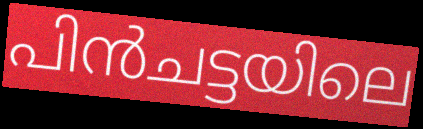
പിൻചട്ടയിലെ